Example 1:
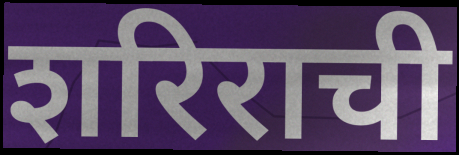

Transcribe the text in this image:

शरिराची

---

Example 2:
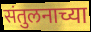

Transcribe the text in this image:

संतुलनाच्या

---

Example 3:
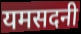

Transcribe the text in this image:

यमसदनी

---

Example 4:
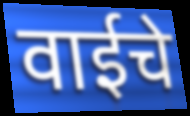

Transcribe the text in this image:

वाईचे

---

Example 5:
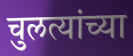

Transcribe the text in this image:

चुलत्यांच्या